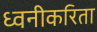
ध्वनीकरिता